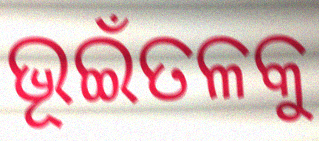
ଭୂଇଁତଳକୁ